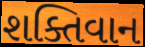
શક્તિવાન